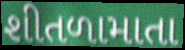
શીતળામાતા